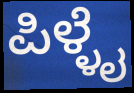
ಪಿಳ್ಳೈ